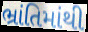
ભ્રાંતિમાંથી